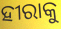
ହୀରାକୁ